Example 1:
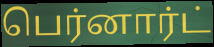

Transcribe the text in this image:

பெர்னார்ட்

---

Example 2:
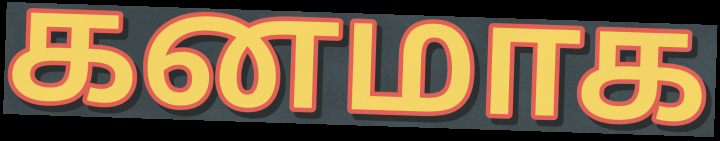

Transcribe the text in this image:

கனமாக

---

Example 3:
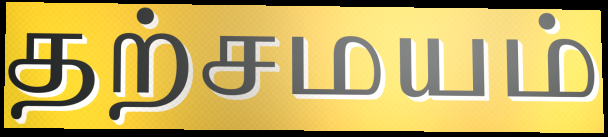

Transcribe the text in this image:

தற்சமயம்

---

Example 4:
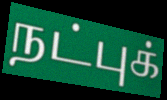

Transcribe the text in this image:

நட்புக்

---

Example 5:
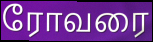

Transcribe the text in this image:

ரோவரை